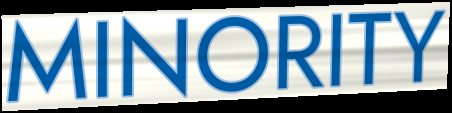
MINORITY